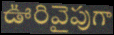
ఊరివైపుగా